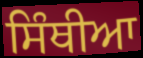
ਸਿੰਥੀਆ